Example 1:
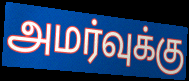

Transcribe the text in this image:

அமர்வுக்கு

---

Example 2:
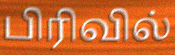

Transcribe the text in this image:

பிரிவில்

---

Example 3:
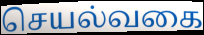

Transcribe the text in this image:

செயல்வகை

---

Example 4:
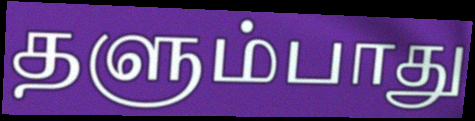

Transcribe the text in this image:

தளும்பாது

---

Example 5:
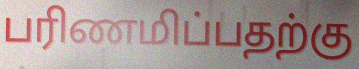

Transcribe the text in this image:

பரிணமிப்பதற்கு